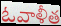
ఓవాళీత